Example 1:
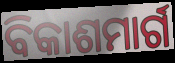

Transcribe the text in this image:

ବିକାଶମାର୍ଗ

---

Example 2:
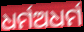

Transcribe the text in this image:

ଧର୍ମଅଧର୍ମ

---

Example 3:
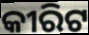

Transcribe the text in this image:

କୀରିଟ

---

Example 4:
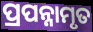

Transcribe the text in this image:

ପ୍ରପନ୍ନାମୃତ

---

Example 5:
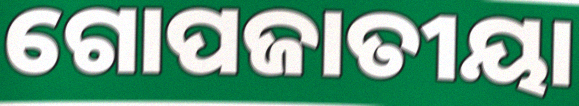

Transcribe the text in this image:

ଗୋପଜାତୀୟା